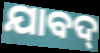
ଯାବଦ୍